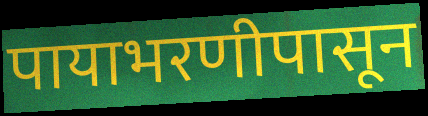
पायाभरणीपासून